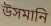
উসমানি